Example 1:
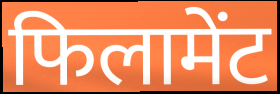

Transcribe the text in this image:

फिलामेंट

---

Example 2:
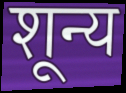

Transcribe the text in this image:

शून्य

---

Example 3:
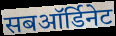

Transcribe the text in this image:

सबऑर्डिनेट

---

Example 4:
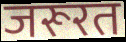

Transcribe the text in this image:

जरूरत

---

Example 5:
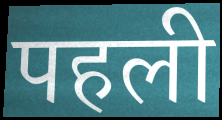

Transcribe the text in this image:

पहली